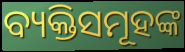
ବ୍ୟକ୍ତିସମୂହଙ୍କ